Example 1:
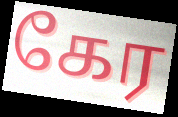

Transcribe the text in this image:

கேர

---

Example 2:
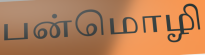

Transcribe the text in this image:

பன்மொழி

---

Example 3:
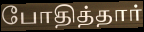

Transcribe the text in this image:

போதித்தார்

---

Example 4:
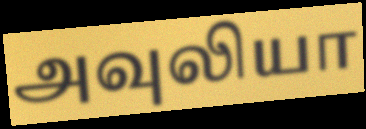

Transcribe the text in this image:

அவுலியா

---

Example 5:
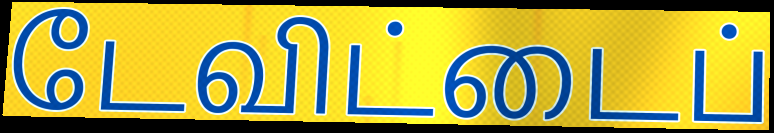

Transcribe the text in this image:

டேவிட்டைப்